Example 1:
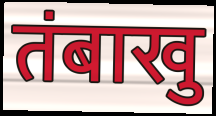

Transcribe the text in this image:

तंबाखु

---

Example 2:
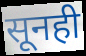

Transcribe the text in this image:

सूनही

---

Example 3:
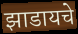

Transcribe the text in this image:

झाडायचे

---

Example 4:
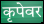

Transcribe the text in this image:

कृपेवर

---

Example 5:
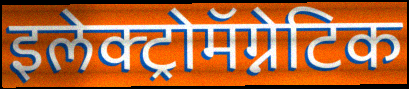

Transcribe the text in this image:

इलेक्ट्रोमॅग्नेटिक